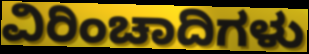
ವಿರಿಂಚಾದಿಗಳು